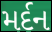
મર્દન